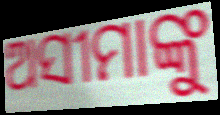
ଅସୀମାଙ୍କୁ